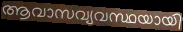
ആവാസവ്യവസ്ഥയായി